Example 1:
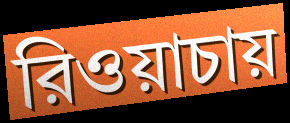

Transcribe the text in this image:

রিওয়াচায়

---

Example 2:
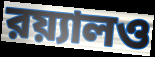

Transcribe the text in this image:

রয়্যালও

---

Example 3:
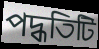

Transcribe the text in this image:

পদ্ধতিটি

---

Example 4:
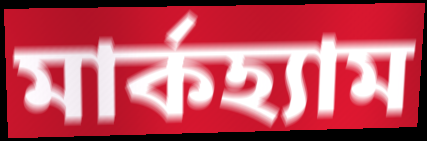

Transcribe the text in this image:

মার্কহ্যাম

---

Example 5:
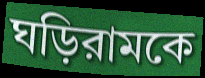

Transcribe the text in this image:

ঘড়িরামকে